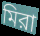
মিরা